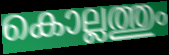
കൊല്ലത്തും